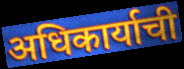
अधिकार्याची